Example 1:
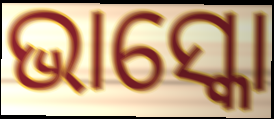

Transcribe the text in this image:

ଭାସ୍କୋ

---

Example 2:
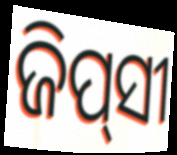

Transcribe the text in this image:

ଜିପ୍‍ସୀ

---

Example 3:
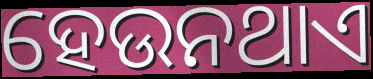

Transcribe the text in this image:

ହେଉନଥାଏ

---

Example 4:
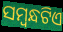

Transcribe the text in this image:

ସମ୍ବନ୍ଧଟିଏ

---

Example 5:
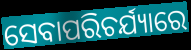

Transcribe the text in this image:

ସେବାପରିଚର୍ଯ୍ୟାରେ